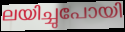
ലയിച്ചുപോയി